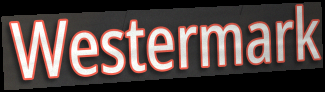
Westermark